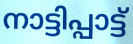
നാട്ടിപ്പാട്ട്